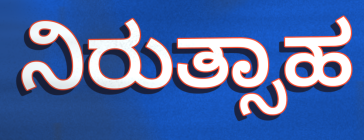
ನಿರುತ್ಸಾಹ